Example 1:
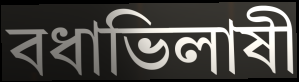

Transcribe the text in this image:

বধাভিলাষী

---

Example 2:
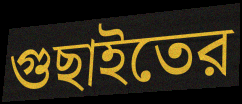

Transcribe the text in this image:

গুছাইতের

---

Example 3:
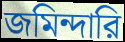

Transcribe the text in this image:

জমিন্দারি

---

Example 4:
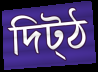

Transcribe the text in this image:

দিট্ঠ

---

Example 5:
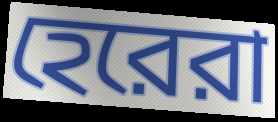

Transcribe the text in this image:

হেরেরা